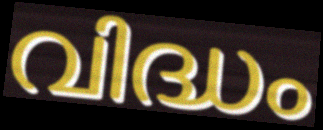
വിദ്ധം